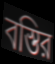
বস্তির